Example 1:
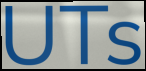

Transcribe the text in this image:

UTs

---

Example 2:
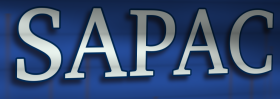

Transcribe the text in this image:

SAPAC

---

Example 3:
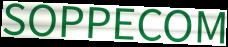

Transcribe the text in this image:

SOPPECOM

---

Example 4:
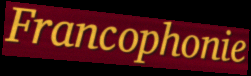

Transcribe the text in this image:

Francophonie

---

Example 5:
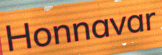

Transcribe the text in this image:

Honnavar